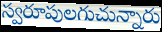
స్వరూపులగుచున్నారు